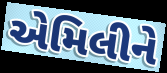
એમિલીને